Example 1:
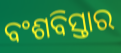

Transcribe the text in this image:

ବଂଶବିସ୍ତାର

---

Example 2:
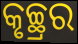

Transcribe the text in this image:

କୃଚ୍ଛ୍ରର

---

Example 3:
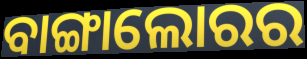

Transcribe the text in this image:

ବାଙ୍ଗାଲୋରର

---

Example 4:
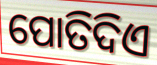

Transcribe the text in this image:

ପୋତିଦିଏ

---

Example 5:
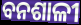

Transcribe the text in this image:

ବନଶାଳୀ